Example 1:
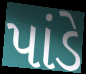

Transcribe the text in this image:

પાંડે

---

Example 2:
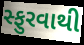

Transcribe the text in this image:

સ્ફુરવાથી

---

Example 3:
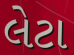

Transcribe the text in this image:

લેટા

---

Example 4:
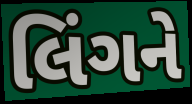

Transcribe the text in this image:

લિંગને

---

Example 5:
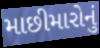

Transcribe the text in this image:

માછીમારોનું